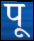
पू